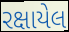
રક્ષાયેલ